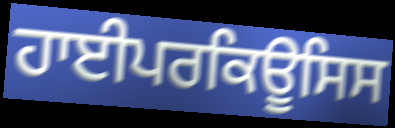
ਹਾਈਪਰਕਿਊਸਿਸ